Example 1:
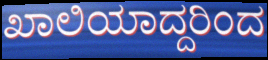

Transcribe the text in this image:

ಖಾಲಿಯಾದ್ದರಿಂದ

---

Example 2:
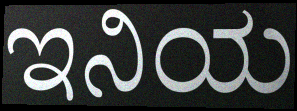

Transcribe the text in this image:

ಇನಿಯ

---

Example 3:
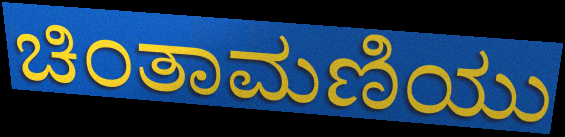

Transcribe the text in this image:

ಚಿಂತಾಮಣಿಯು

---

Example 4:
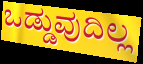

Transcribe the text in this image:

ಒಡ್ಡುವುದಿಲ್ಲ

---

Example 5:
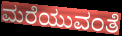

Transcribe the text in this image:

ಮರೆಯುವಂತೆ